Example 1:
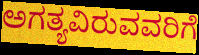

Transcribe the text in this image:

ಅಗತ್ಯವಿರುವವರಿಗೆ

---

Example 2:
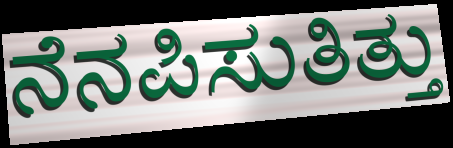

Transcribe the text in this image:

ನೆನಪಿಸುತಿತ್ತು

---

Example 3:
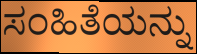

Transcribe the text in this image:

ಸಂಹಿತೆಯನ್ನು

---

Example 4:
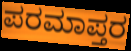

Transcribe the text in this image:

ಪರಮಾಪ್ತರ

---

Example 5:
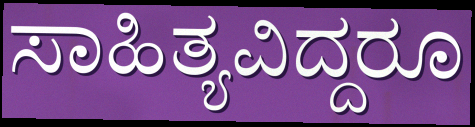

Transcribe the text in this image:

ಸಾಹಿತ್ಯವಿದ್ದರೂ